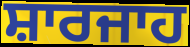
ਸ਼ਾਰਜਾਹ